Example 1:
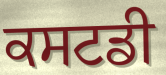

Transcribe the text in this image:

ਕਸਟਡੀ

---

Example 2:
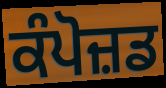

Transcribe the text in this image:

ਕੰਪੋਜ਼ਡ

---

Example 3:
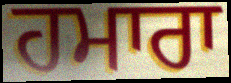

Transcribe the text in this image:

ਹਮਾਰਾ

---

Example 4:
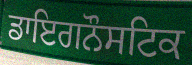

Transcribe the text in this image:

ਡਾਇਗਨੌਸਟਿਕ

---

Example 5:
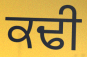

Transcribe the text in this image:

ਕਢੀ